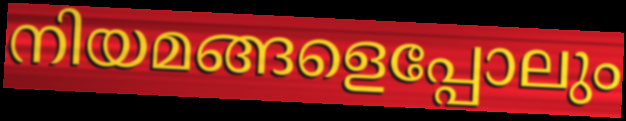
നിയമങ്ങളെപ്പോലും